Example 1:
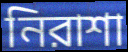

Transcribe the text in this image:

নিরাশা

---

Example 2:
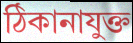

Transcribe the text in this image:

ঠিকানাযুক্ত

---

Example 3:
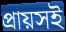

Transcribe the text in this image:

প্রায়সই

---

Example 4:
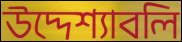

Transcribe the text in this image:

উদ্দেশ্যাবলি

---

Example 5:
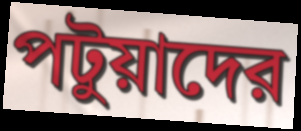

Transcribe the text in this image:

পটুয়াদের